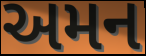
અમન